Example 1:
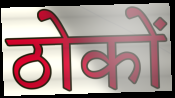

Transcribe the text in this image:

ठोकों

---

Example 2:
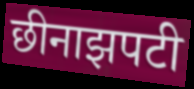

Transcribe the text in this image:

छीनाझपटी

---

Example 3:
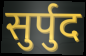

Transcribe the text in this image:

सुर्पुद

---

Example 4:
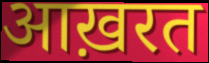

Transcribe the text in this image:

आख़रत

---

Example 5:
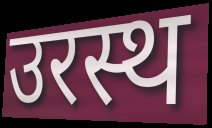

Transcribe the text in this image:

उरस्थ